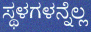
ಸ್ಥಳಗಳನ್ನೆಲ್ಲ